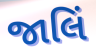
જાલિં